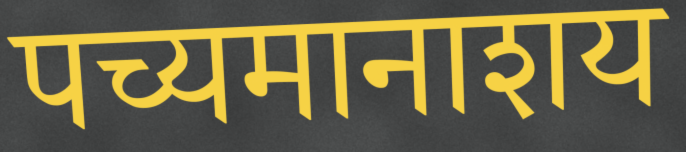
पच्यमानाशय